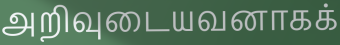
அறிவுடையவனாகக்